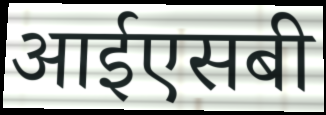
आईएसबी